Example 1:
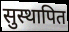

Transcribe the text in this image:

सुस्थापित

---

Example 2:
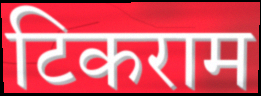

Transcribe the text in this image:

टिकराम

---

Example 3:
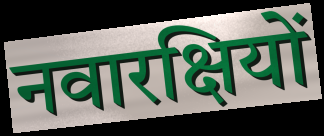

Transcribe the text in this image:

नवारक्षियों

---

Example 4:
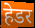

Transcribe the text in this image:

हेडर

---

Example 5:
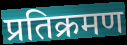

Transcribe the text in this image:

प्रतिक्रमण